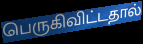
பெருகிவிட்டதால்